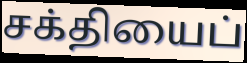
சக்தியைப்